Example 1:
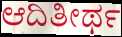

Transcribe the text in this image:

ಆದಿತೀರ್ಥ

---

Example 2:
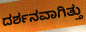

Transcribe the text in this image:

ದರ್ಶನವಾಗಿತ್ತು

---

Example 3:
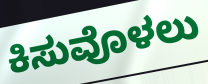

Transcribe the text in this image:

ಕಿಸುವೊಳಲು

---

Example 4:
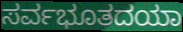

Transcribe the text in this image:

ಸರ್ವಭೂತದಯಾ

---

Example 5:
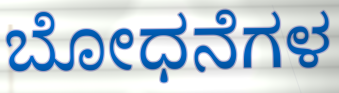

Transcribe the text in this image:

ಬೋಧನೆಗಳ